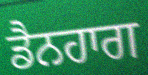
ਡੈਨਹਾਗ